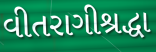
વીતરાગીશ્રદ્ધા